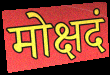
मोक्षदं